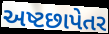
અષ્ટછાપેતર